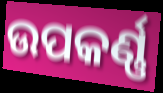
ଉପକର୍ଣ୍ଣ